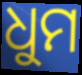
ଧୁମ